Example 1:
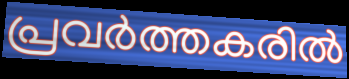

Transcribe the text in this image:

പ്രവർത്തകരിൽ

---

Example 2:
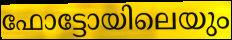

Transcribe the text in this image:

ഫോട്ടോയിലെയും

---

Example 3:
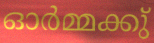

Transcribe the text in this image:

ഓർമ്മക്കു്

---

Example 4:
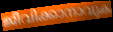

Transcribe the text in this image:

ജീവിക്കാനാവുക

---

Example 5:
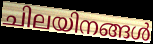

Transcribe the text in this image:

ചിലയിനങ്ങൾ